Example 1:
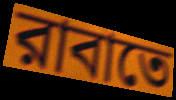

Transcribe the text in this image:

রাবাতে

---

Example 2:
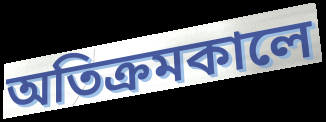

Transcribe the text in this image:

অতিক্রমকালে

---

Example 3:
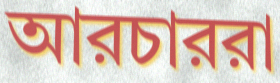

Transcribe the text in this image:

আরচাররা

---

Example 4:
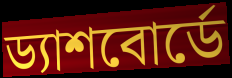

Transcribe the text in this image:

ড্যাশবোর্ডে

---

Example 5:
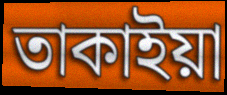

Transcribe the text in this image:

তাকাইয়া